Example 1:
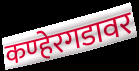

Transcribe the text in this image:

कण्हेरगडावर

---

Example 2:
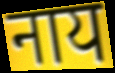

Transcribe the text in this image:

नाय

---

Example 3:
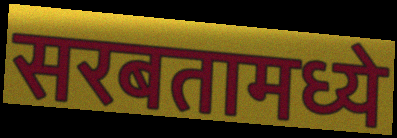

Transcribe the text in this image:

सरबतामध्ये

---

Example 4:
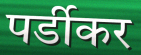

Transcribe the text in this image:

पर्डीकर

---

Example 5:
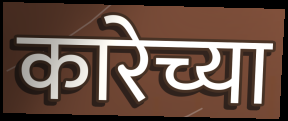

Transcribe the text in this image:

कारेच्या